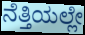
ನೆತ್ತಿಯಲ್ಲೇ